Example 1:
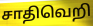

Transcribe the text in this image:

சாதிவெறி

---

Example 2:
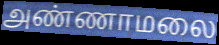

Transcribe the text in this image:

அண்ணாமலை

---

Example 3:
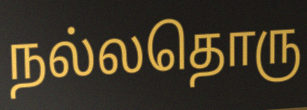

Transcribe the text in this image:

நல்லதொரு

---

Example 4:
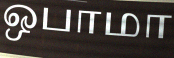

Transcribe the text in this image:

ஒபாமா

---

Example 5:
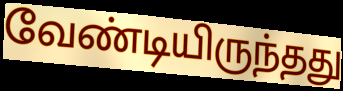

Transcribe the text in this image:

வேண்டியிருந்தது